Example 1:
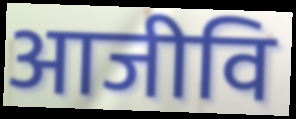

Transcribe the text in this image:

आजीवि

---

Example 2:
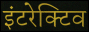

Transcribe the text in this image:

इंटरेक्टिव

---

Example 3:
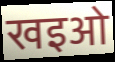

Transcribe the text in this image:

खइओ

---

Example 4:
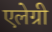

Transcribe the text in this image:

एलेग्री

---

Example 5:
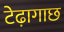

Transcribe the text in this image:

टेढ़ागाछ